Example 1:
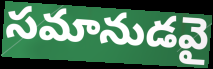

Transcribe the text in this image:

సమానుడవై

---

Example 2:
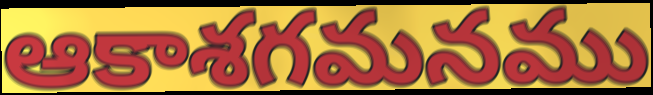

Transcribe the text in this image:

ఆకాశగమనము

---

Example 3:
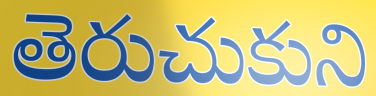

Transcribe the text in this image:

తెరుచుకుని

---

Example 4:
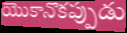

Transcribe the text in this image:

యొకానొకప్పుడు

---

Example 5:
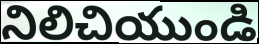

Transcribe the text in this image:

నిలిచియుండి